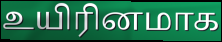
உயிரினமாக